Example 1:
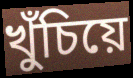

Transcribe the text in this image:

খুঁচিয়ে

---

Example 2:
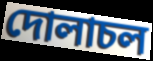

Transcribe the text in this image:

দোলাচল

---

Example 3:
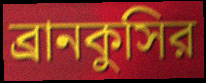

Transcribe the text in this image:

ব্রানকুসির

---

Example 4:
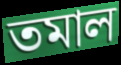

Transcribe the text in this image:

তমাল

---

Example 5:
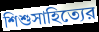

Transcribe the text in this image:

শিশুসাহিত্যের